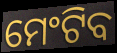
ମେଂଟିବ